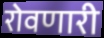
रोवणारी